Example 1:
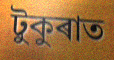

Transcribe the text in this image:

টুকুৰাত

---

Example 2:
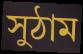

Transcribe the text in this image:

সুঠাম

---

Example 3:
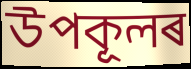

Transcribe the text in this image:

উপকূলৰ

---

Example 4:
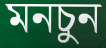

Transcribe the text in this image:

মনচুন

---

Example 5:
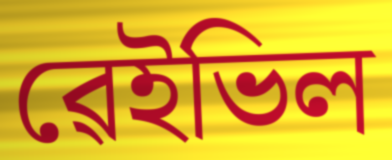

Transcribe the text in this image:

ৱেইভিল